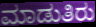
ಮಾಡುತಿರು